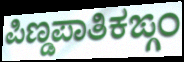
ಪಿಣ್ಡಪಾತಿಕಙ್ಗಂ